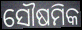
ସୌଷମିକ